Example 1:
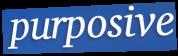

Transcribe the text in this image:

purposive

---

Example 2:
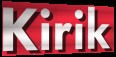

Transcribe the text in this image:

Kirik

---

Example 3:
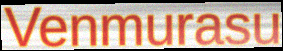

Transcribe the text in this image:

Venmurasu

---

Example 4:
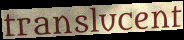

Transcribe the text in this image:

translucent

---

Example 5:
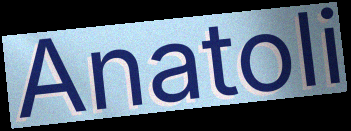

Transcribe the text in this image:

Anatoli